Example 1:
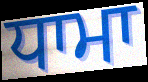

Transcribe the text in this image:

ਧਾਮਾ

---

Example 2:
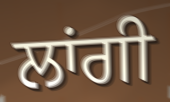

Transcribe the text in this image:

ਲਾਂਗੀ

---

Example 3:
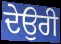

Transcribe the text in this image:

ਦੇਉਰੀ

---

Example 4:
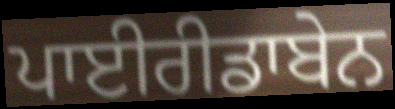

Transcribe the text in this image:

ਪਾਈਰੀਡਾਬੇਨ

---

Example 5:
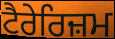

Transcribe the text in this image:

ਟੈਰੇਰਿਜ਼ਮ